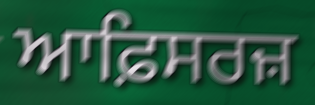
ਆਫ਼ਿਸਰਜ਼